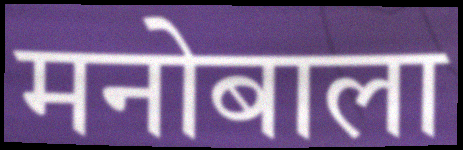
मनोबाला